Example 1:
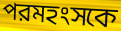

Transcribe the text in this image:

পরমহংসকে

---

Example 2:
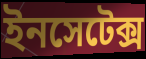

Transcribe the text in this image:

ইনসেটেক্স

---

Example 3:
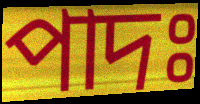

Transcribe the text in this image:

পাদঃ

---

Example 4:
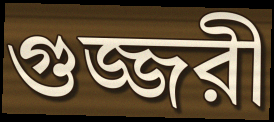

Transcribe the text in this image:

গুজ্জরী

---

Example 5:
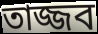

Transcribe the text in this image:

তাজ্জব